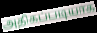
அதிகப்படியாக